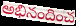
అభినందించ